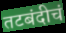
तटबंदीचं